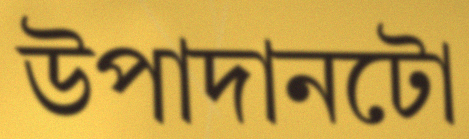
উপাদানটো